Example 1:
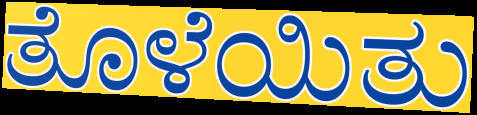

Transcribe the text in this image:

ತೊಳೆಯಿತು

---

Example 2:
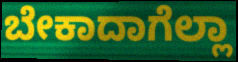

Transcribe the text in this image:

ಬೇಕಾದಾಗೆಲ್ಲಾ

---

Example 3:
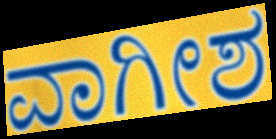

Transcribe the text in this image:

ವಾಗೀಶ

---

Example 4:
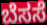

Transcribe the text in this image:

ಬೆಸಸೆ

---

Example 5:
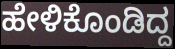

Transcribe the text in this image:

ಹೇಳಿಕೊಂಡಿದ್ದ